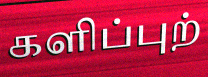
களிப்புற்